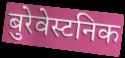
बुरेवेस्टनिक